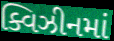
ક્વિઝીનમાં